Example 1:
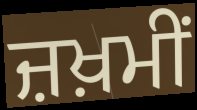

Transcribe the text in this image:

ਜ਼ਖ਼ਮੀਂ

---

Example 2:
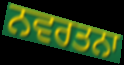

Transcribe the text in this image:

ਨਵਰਤਨਾ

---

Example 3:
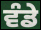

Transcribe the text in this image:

ਵੰਡੇ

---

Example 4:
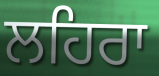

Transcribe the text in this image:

ਲਹਿਰਾ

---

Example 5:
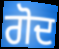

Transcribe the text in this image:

ਗੋਦ